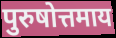
पुरुषोत्तमाय